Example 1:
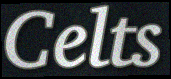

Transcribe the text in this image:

Celts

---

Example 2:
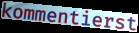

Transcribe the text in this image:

kommentierst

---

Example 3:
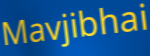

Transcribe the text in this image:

Mavjibhai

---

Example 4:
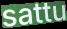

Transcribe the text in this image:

sattu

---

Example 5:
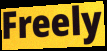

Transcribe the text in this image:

Freely